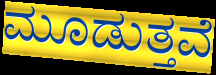
ಮೂಡುತ್ತವೆ